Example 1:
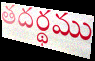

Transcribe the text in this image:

తదర్థము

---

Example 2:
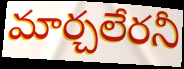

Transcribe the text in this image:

మార్చలేరనీ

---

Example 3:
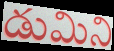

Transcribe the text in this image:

డుమిని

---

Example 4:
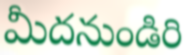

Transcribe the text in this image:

మీదనుండిరి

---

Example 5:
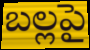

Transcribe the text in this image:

బల్లపై